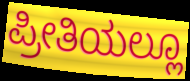
ಪ್ರೀತಿಯಲ್ಲೂ